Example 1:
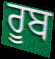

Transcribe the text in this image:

ਰੂਬ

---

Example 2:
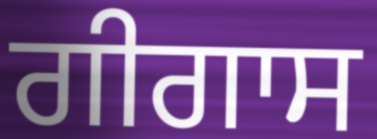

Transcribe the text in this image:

ਗੀਗਾਸ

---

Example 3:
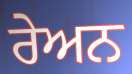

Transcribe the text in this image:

ਰੇਅਨ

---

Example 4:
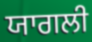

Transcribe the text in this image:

ਯਾਗਲੀ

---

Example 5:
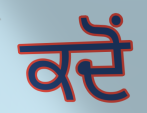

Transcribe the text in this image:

ਕਦੋਂ